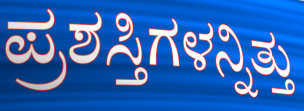
ಪ್ರಶಸ್ತಿಗಳನ್ನಿತ್ತು